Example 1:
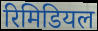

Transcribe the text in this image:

रिमिडियल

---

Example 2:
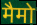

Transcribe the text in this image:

मैमो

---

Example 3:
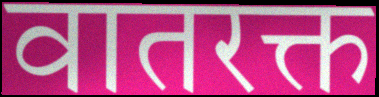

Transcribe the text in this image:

वातरक्त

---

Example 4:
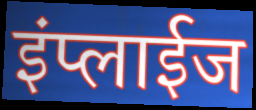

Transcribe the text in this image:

इंप्लाईज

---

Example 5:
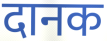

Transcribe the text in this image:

दानक